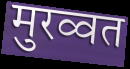
मुरव्वत